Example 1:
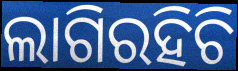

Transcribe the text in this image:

ଲାଗିରହିଚି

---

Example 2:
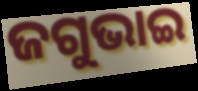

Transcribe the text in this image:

ଜଗୁଭାଇ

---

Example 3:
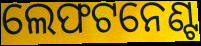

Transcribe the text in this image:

ଲେଫଟନେଣ୍ଟ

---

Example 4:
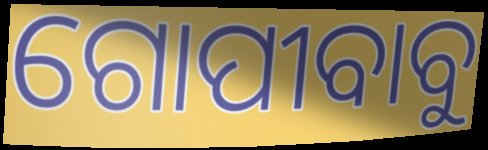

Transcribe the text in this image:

ଗୋପୀବାବୁ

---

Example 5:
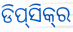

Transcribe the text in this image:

ଡିପ୍‌ସିକ୍‌ର